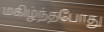
மகிழ்ந்தபோது